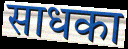
साधका